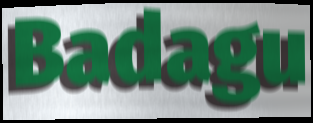
Badagu